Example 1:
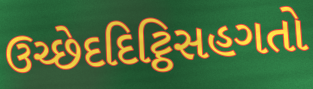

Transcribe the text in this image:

ઉચ્છેદદિટ્ઠિસહગતો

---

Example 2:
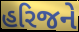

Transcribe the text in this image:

હરિજને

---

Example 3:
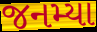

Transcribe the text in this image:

જનમ્યા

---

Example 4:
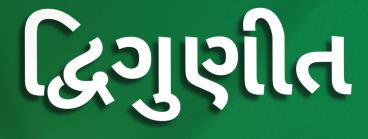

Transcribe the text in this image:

દ્વિગુણીત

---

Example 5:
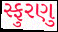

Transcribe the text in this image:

સ્ફુરણુ